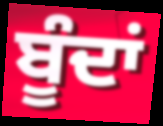
ਬੂੰਦਾਂ